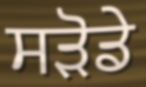
ਸੜੋਡੇ